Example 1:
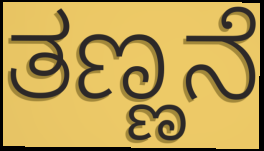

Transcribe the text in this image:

ತಣ್ಣನೆ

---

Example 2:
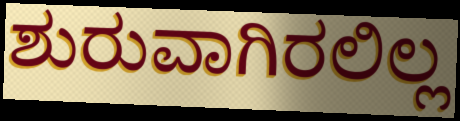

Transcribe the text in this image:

ಶುರುವಾಗಿರಲಿಲ್ಲ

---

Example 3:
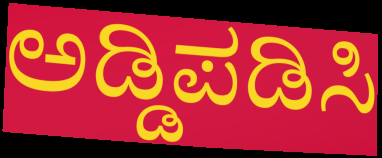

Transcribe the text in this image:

ಅಡ್ಡಿಪಡಿಸಿ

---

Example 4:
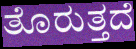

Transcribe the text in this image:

ತೊರುತ್ತದೆ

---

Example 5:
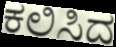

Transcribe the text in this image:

ಕಲಿಸಿದ